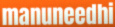
manuneedhi